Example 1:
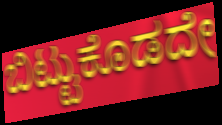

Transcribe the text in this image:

ಬಿಟ್ಟುಕೊಡದೇ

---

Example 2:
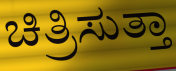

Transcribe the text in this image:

ಚಿತ್ರಿಸುತ್ತಾ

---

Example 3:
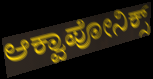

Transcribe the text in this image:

ಆಕ್ವಾಪೋನಿಕ್ಸ್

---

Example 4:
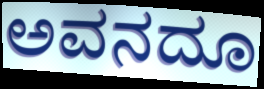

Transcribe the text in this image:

ಅವನದೂ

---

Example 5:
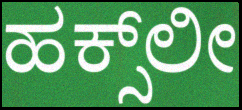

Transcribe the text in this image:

ಹಕ್ಸ್‌ಲೀ